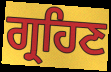
ਗ੍ਰਹਿਣ